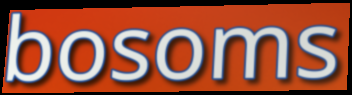
bosoms